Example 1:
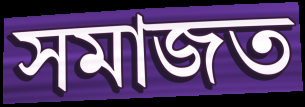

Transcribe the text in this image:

সমাজত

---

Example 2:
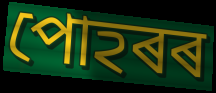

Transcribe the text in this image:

পোহৰৰ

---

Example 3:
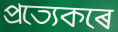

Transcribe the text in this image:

প্ৰত্যেকৰে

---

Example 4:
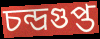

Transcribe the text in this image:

চন্দ্ৰগুপ্ত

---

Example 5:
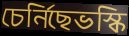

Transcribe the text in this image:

চেৰ্নিছেভস্কি